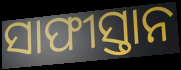
ସାଫୀସ୍ତାନ